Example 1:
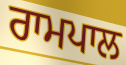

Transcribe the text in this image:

ਰਾਮਪਾਲ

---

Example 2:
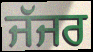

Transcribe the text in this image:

ਜੱਜਰ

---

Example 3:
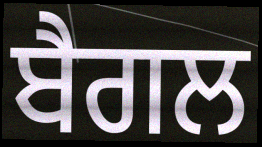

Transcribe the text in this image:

ਬੈਗਲ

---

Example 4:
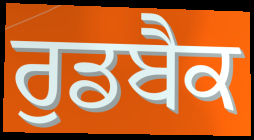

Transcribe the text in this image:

ਰੁਡਬੈਕ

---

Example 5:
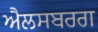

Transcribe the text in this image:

ਐਲਸਬਰਗ